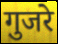
गुजरे